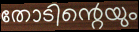
തോടിന്റെയും